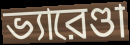
ভ্যারেণ্ডা